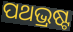
ପଥଭ୍ରଷ୍ଟ